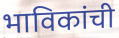
भाविकांची